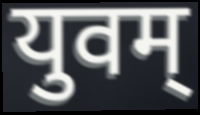
युवम्